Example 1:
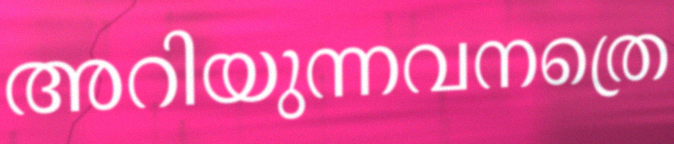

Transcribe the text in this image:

അറിയുന്നവനത്രെ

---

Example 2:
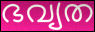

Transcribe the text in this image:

ഭവ്യത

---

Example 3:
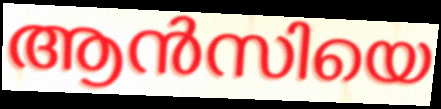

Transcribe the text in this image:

ആൻസിയെ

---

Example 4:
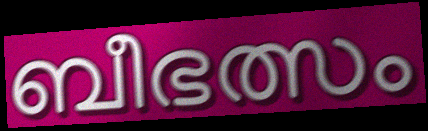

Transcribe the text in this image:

ബീഭത്സം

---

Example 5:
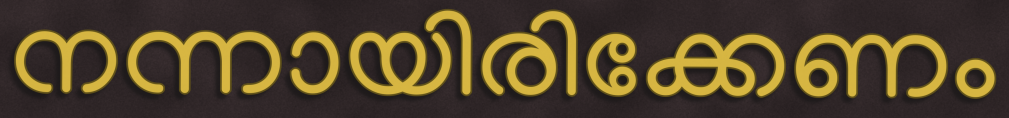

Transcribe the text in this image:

നന്നായിരിക്കേണം